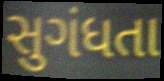
સુગંધતા